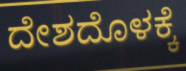
ದೇಶದೊಳಕ್ಕೆ